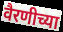
वैरणीच्या